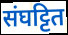
संघट्टित